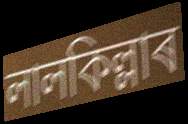
লালকিল্লাৰ